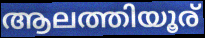
ആലത്തിയൂര്